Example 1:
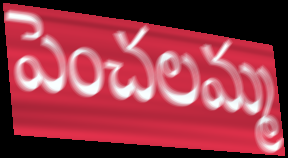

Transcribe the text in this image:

పెంచలమ్మ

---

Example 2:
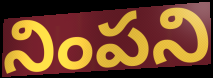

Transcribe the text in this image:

నింపని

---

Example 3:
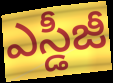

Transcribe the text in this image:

ఎస్డీజీ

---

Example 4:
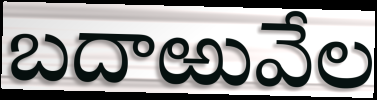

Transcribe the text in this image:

బదాఱువేల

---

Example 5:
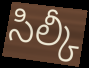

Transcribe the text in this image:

సిల్కీ